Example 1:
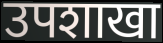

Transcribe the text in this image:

उपशाखा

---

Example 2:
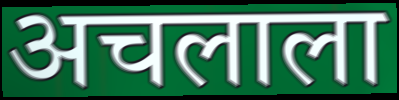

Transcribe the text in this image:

अचलाला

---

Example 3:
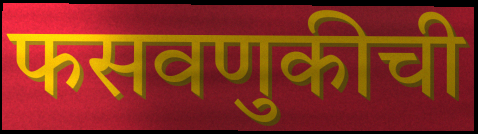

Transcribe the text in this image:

फसवणुकीची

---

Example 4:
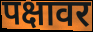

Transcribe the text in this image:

पक्षावर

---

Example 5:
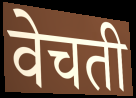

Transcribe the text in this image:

वेचती